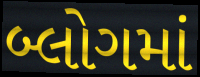
બ્લોગમાં